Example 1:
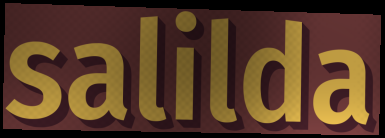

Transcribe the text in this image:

salilda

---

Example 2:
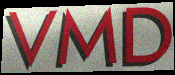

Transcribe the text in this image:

VMD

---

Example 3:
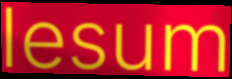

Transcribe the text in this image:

Iesum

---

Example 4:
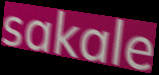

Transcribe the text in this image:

sakale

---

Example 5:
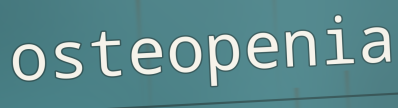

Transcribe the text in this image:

osteopenia